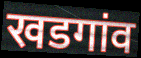
खडगांव